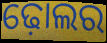
ଢ଼ୋଲର